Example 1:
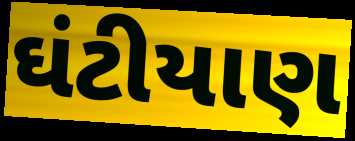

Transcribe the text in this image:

ઘંટીયાણ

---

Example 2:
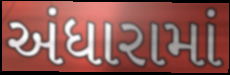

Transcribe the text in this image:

અંધારામાં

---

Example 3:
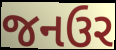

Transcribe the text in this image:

જનઉર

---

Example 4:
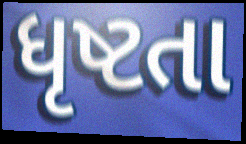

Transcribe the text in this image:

ધૃષ્ટતા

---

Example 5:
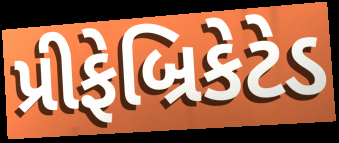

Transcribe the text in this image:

પ્રીફેબ્રિકેટેડ